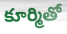
కూర్మితో